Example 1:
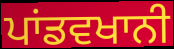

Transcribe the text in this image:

ਪਾਂਡਵਖਾਨੀ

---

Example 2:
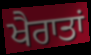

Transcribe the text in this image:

ਖੈਰਾਤਾਂ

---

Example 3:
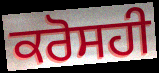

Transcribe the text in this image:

ਕਰੋਸਹੀ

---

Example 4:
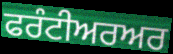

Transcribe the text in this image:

ਫਰੰਟੀਅਰਅਰ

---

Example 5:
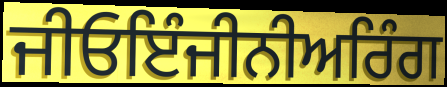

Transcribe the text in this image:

ਜੀਓਇੰਜੀਨੀਅਰਿੰਗ